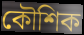
কৌশিক